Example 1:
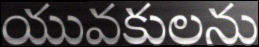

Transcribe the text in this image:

యువకులను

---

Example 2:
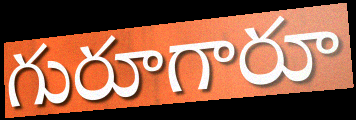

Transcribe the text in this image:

గురూగారూ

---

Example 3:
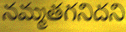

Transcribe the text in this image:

నమ్మతగనిదని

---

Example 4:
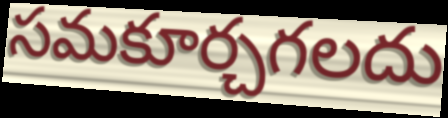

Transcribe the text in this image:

సమకూర్చగలదు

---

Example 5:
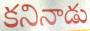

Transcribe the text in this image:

కనినాడు